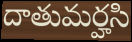
దాతుమర్హసి